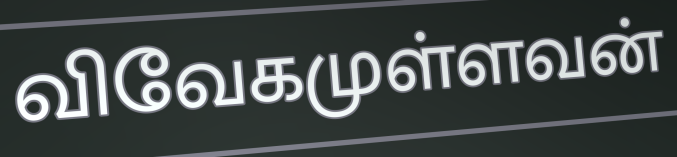
விவேகமுள்ளவன்